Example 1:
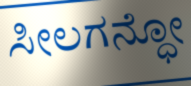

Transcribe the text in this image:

ಸೀಲಗನ್ಧೋ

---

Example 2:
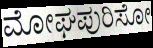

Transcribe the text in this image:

ಮೋಘಪುರಿಸೋ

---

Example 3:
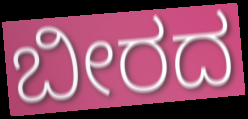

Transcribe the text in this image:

ಬೀರದ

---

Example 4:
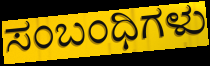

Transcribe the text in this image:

ಸಂಬಂಧಿಗಳು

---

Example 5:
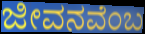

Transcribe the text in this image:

ಜೀವನವೆಂಬ